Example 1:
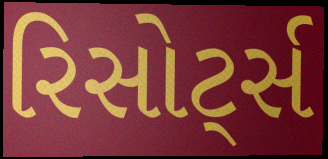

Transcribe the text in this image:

રિસોર્ટ્સ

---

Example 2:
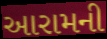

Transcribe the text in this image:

આરામની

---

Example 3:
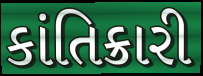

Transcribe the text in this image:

કાંતિક્રારી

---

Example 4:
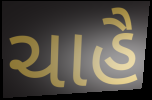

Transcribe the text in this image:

ચાહૈ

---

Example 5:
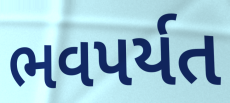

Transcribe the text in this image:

ભવપર્યત